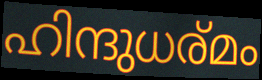
ഹിന്ദുധര്മം